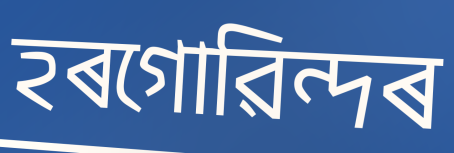
হৰগোৱিন্দৰ